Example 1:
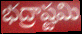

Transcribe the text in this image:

భద్రాష్టమి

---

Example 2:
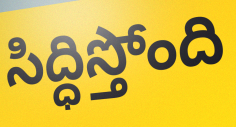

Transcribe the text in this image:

సిద్ధిస్తోంది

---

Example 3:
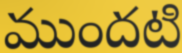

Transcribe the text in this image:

ముందటి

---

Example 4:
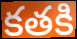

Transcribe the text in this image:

కతకి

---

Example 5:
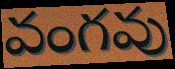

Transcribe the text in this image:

వంగవు